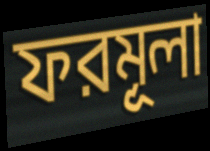
ফরমূলা